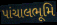
પાંચાલભૂમિ